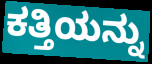
ಕತ್ತಿಯನ್ನು